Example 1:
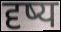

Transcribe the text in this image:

दृष्य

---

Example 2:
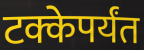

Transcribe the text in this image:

टक्केपर्यंत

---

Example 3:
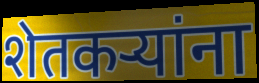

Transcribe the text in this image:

शेतकऱ्यांना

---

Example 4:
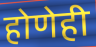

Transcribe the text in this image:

होणेही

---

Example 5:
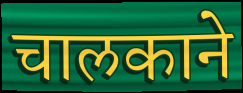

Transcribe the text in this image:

चालकाने